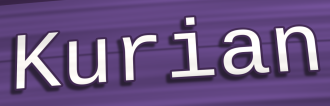
Kurian